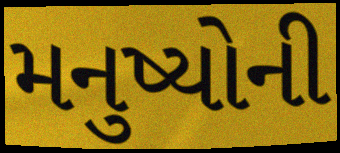
મનુષ્યોની